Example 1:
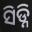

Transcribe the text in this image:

ସିଡ୍ନି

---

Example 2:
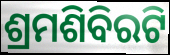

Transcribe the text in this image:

ଶ୍ରମଶିବିରଟି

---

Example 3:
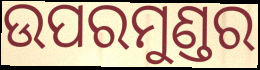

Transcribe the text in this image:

ଉପରମୁଣ୍ଡର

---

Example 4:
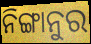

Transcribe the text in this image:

ନିଙ୍ଗାନୁର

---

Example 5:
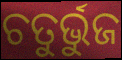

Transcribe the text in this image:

ଚତୁର୍ଭୁଜ